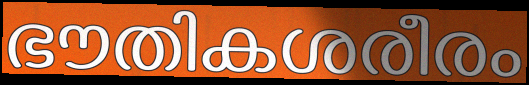
ഭൗതികശരീരം